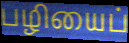
பழியைப்